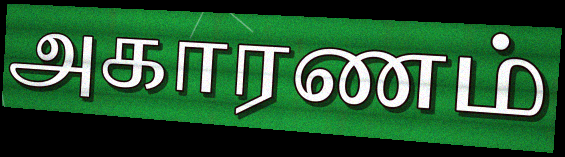
அகாரணம்